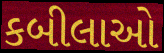
કબીલાઓ